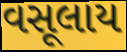
વસૂલાય